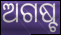
ଅଗଷ୍ଚ